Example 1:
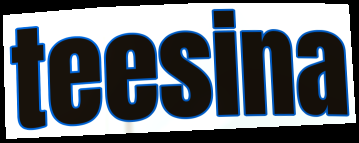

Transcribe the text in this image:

teesina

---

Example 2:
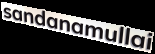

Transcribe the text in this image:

sandanamullai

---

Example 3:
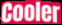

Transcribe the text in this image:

Cooler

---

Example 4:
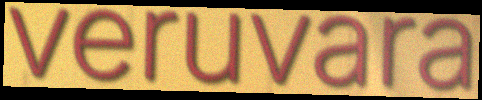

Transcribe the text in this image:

veruvara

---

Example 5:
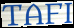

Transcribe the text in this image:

TAFI